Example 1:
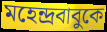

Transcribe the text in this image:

মহেন্দ্রবাবুকে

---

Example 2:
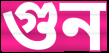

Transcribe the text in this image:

গুন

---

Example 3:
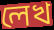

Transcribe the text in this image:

লেখ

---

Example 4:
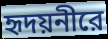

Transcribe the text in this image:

হৃদয়নীরে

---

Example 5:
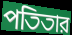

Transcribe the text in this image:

পতিতার